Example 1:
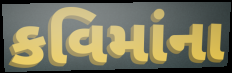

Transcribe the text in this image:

કવિમાંના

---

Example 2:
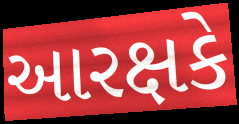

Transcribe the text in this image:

આરક્ષકે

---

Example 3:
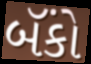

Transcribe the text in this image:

બૅંકો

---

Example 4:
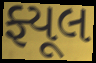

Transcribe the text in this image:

ફ્યૂલ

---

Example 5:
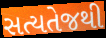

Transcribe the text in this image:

સત્યતેજથી